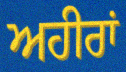
ਅਹੀਰਾਂ